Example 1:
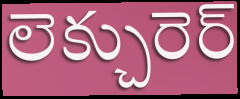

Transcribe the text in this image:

లెక్చురెర్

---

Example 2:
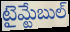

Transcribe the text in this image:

టైమ్టేబుల్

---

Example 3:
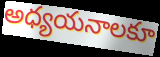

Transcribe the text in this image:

అధ్యయనాలకూ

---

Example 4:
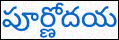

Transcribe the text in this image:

పూర్ణోదయ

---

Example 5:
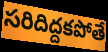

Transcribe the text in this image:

సరిదిద్దకపోతే